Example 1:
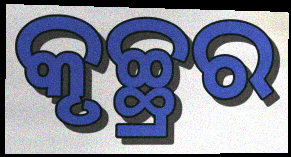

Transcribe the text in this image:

କୃଚ୍ଛ୍ରର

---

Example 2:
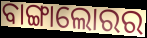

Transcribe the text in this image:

ବାଙ୍ଗାଲୋରର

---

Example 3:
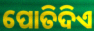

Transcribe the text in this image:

ପୋତିଦିଏ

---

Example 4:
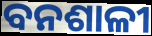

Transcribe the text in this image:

ବନଶାଳୀ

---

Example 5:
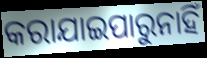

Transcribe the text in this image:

କରାଯାଇପାରୁନାହିଁ